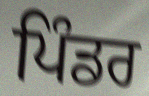
ਪਿੰਡਰ